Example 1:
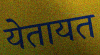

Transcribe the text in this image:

येतायत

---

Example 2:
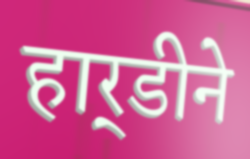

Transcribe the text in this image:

हार्डीने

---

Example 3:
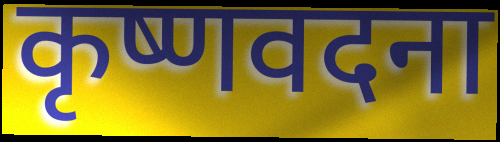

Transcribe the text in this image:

कृष्णवदना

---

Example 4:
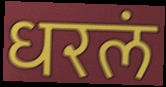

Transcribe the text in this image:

धरलं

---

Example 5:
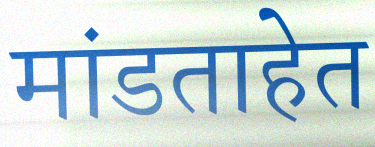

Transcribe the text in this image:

मांडताहेत